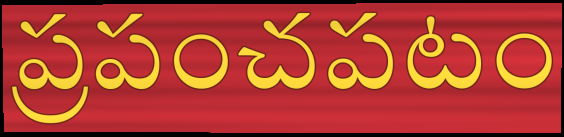
ప్రపంచపటం